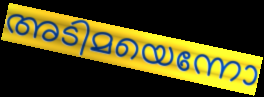
അടിമയെന്നോ